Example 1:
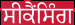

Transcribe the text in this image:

ਸੀਕੈਂਸਿੰਗ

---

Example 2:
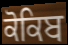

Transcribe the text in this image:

ਕੋਕਿਬ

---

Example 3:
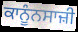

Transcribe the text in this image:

ਕਾਨੂੰਨਸਾਜ਼ੀ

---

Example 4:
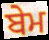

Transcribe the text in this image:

ਬੇਮ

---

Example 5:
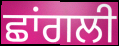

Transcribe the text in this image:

ਛਾਂਗਲੀ